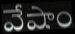
వేషాం